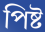
পিষ্ট